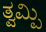
ತ್ವಮ್ಪಿ